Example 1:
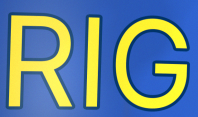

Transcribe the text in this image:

RIG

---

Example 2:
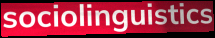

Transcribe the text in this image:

sociolinguistics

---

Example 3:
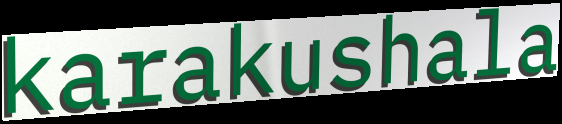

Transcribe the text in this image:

karakushala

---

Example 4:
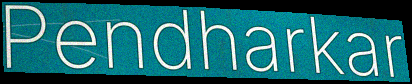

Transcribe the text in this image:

Pendharkar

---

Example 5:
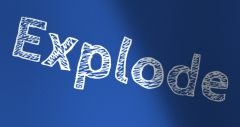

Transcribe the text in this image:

Explode